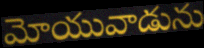
మోయువాడును